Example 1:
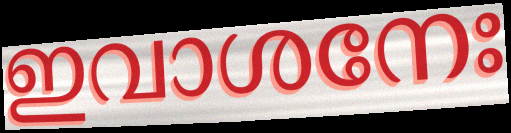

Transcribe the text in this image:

ഇവാശനേഃ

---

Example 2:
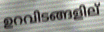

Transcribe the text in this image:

ഉറവിടങ്ങളില്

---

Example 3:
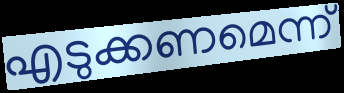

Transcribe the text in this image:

എടുക്കണമെന്ന്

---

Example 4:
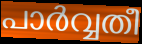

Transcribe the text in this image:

പാർവ്വതീ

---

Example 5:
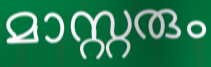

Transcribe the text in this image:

മാസ്റ്റരും